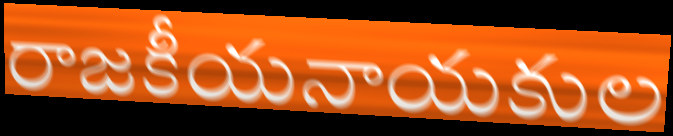
రాజకీయనాయకుల